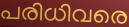
പരിധിവരെ